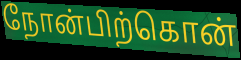
நோன்பிற்கொன்